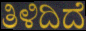
ತಿಳಿದಿದೆ